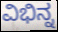
ವಿಭಿನ್ನ